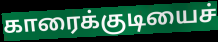
காரைக்குடியைச்